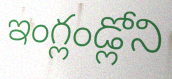
ఇంగ్లండ్లోని